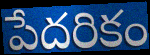
పేదరికం